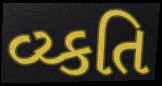
વ્ય્કતિ